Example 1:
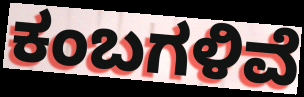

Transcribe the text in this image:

ಕಂಬಗಳಿವೆ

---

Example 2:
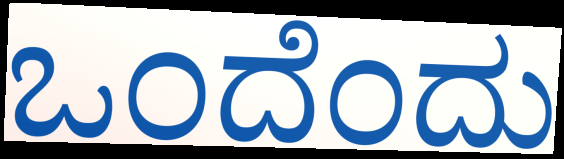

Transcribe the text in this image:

ಒಂದೆಂದು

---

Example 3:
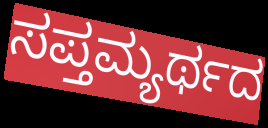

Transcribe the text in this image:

ಸಪ್ತಮ್ಯರ್ಥದ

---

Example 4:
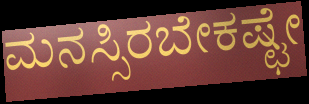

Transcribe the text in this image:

ಮನಸ್ಸಿರಬೇಕಷ್ಟೇ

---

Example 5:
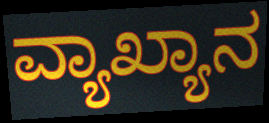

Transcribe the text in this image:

ವ್ಯಾಖ್ಯಾನ